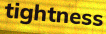
tightness